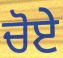
ਚੋਏ